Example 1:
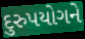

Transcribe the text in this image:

દુરુપયોગને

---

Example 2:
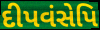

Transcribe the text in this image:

દીપવંસેપિ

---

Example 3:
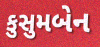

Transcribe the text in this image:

કુસુમબેન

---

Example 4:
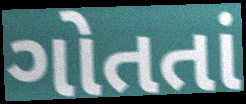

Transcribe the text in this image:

ગોતતાં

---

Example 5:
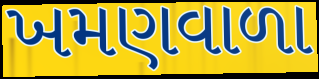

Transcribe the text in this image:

ખમણવાળા